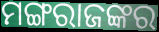
ମଙ୍ଗରାଜଙ୍କର